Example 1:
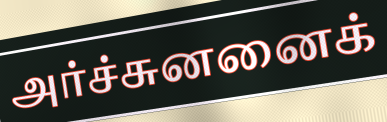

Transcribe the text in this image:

அர்ச்சுனனைக்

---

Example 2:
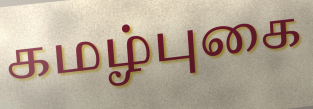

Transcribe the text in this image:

கமழ்புகை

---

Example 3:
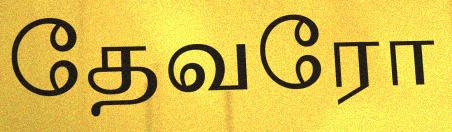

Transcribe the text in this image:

தேவரோ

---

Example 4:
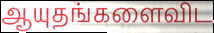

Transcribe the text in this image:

ஆயுதங்களைவிட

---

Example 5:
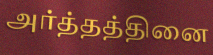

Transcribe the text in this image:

அர்த்தத்தினை